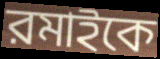
রমাইকে